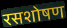
रसशोषण